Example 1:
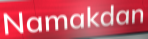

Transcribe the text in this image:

Namakdan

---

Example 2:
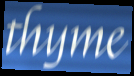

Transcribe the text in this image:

thyme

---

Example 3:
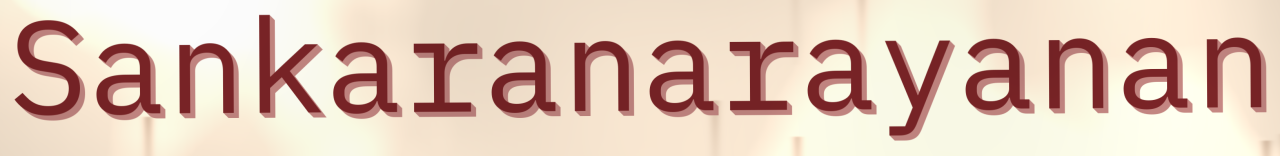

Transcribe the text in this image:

Sankaranarayanan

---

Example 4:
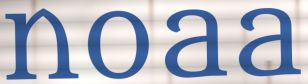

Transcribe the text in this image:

noaa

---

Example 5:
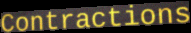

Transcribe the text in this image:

Contractions